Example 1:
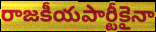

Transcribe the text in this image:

రాజకీయపార్టీకైనా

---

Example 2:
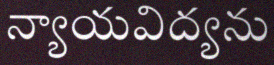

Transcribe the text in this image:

న్యాయవిద్యను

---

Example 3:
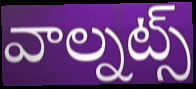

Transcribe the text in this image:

వాల్నట్స్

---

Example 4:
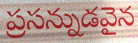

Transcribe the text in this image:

ప్రసన్నుడవైన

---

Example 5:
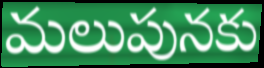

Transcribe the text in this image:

మలుపునకు